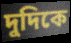
দুদিকে